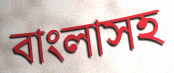
বাংলাসহ